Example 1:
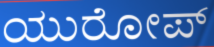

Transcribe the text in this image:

ಯುರೋಪ್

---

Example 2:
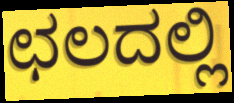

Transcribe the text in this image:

ಛಲದಲ್ಲಿ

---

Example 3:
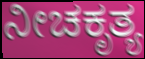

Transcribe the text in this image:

ನೀಚಕೃತ್ಯ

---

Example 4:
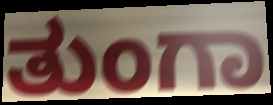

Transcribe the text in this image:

ತುಂಗಾ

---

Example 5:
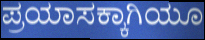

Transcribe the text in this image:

ಪ್ರಯಾಸಕ್ಕಾಗಿಯೂ